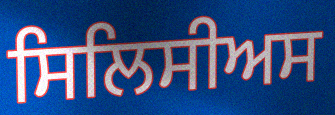
ਸਿਲਿਸੀਅਸ